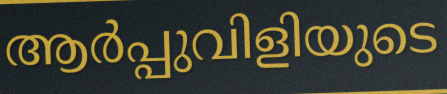
ആർപ്പുവിളിയുടെ